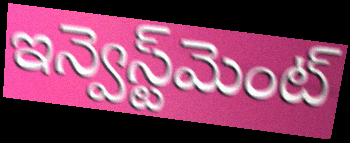
ఇన్వెస్ట్‌మెంట్